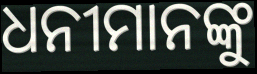
ଧନୀମାନଙ୍କୁ